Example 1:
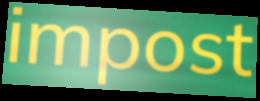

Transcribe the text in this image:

impost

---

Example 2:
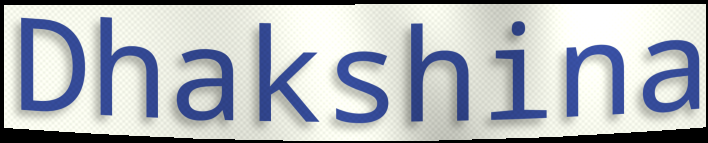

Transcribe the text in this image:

Dhakshina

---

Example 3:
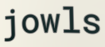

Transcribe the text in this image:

jowls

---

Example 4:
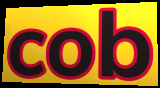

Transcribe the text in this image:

cob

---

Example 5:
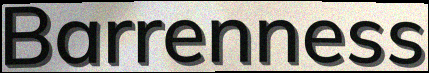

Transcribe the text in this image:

Barrenness